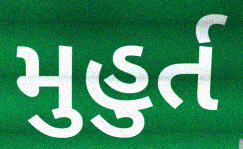
મુહુર્ત